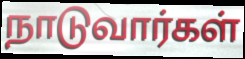
நாடுவார்கள்